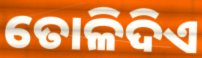
ତୋଳିଦିଏ